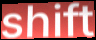
shift